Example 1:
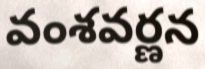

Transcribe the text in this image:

వంశవర్ణన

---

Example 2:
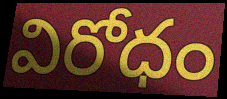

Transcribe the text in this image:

విరోధం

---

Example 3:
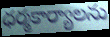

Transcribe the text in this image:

ధర్మకార్యాలను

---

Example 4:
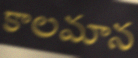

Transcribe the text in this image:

కాలమాన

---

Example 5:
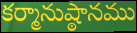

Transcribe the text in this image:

కర్మానుష్ఠానము